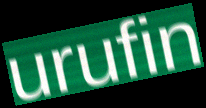
urufin